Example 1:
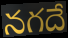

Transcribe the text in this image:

నగదే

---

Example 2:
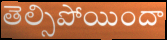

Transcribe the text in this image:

తెల్సిపోయిందా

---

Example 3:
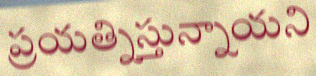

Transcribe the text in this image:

ప్రయత్నిస్తున్నాయని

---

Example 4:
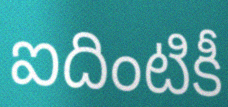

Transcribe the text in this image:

ఐదింటికీ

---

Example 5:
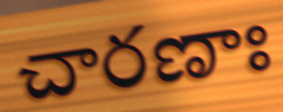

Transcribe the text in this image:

చారణాః